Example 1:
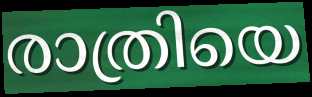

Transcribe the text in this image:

രാത്രിയെ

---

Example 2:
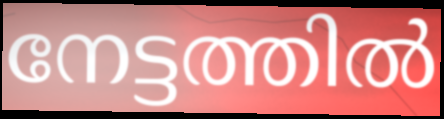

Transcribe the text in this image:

നേട്ടത്തിൽ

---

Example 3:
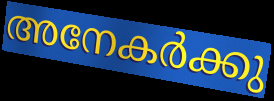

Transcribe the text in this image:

അനേകർക്കു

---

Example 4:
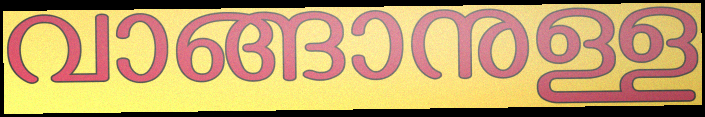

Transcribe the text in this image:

വാങ്ങാനുള്ള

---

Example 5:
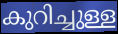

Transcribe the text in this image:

കുറിച്ചുള്ള